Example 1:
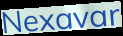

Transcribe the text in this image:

Nexavar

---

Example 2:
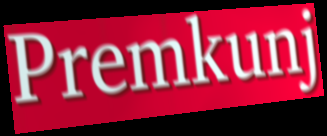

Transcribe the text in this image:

Premkunj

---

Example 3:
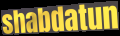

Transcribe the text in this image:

shabdatun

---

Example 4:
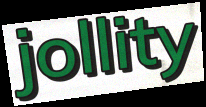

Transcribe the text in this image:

jollity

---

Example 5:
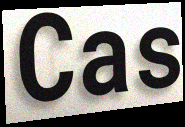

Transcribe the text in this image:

Cas